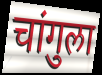
चांगुला